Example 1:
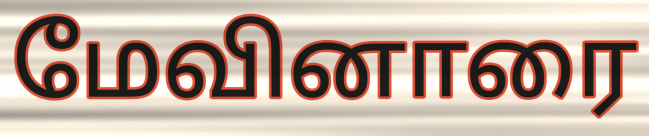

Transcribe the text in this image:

மேவினாரை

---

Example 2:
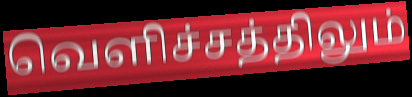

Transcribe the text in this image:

வெளிச்சத்திலும்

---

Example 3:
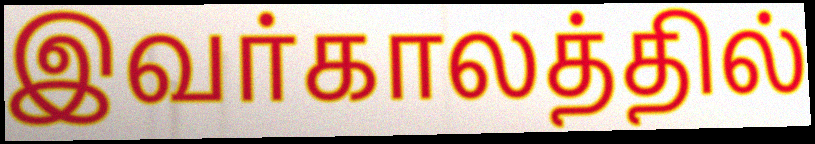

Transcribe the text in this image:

இவர்காலத்தில்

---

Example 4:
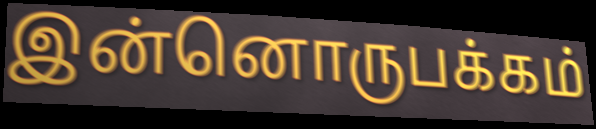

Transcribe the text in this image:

இன்னொருபக்கம்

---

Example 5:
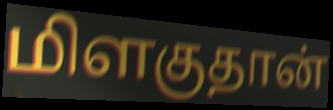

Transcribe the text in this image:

மிளகுதான்